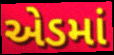
એડમાં